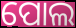
ପୋଲ